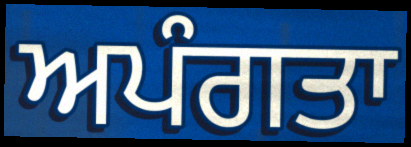
ਅਪੰਗਤਾ